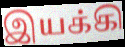
இயக்கி